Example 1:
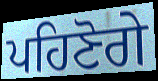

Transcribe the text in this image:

ਪਹਿਣੋਗੇ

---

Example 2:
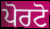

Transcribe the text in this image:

ਪੋਰਟੋ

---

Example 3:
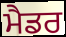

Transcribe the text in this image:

ਮੈਡਰ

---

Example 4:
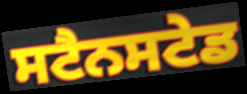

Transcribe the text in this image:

ਸਟੈਨਸਟੇਡ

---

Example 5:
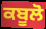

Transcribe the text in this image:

ਕਬੂਲੋ